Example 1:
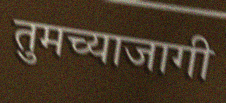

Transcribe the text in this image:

तुमच्याजागी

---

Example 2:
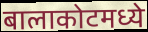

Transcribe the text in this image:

बालाकोटमध्ये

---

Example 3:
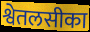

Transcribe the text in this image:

श्वेतलसीका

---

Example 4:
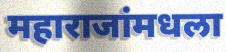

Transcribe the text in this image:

महाराजांमधला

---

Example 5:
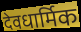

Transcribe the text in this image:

देवधार्मिक